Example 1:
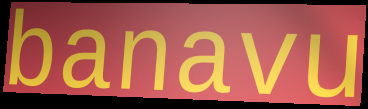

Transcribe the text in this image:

banavu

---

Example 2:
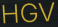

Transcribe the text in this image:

HGV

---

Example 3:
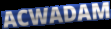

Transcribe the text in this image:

ACWADAM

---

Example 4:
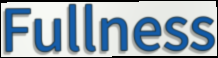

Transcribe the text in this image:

Fullness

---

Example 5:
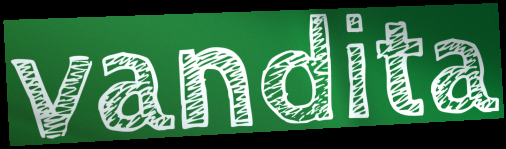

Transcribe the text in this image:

vandita